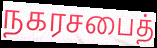
நகரசபைத்